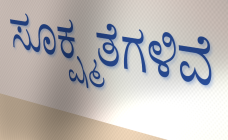
ಸೂಕ್ಷ್ಮತೆಗಳಿವೆ